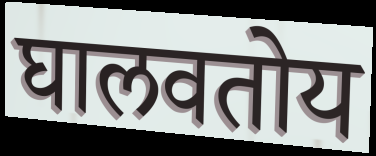
घालवतोय